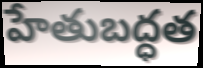
హేతుబద్ధత